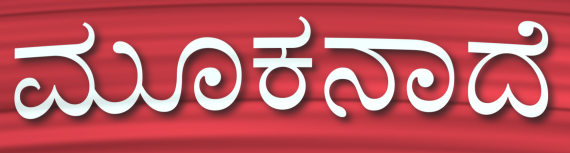
ಮೂಕನಾದೆ